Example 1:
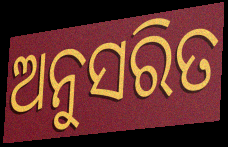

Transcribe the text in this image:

ଅନୁସରିତ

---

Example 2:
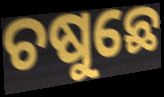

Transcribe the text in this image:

ଚଷୁଛେ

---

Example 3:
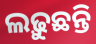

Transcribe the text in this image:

ଲଢ଼ୁଛନ୍ତି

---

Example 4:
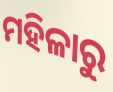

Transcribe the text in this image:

ମହିଳାରୁ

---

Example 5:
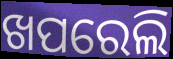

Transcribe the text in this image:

ଖପରେଲି